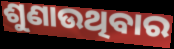
ଶୁଣାଉଥିବାର